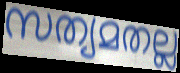
സത്യമതല്ല